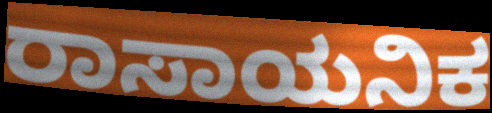
ರಾಸಾಯನಿಕ